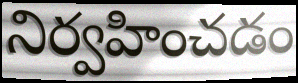
నిర్వహించడం